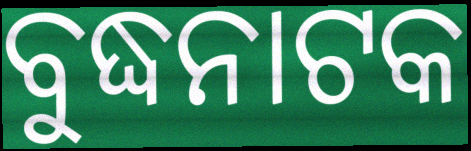
ବୁଦ୍ଧନାଟକ